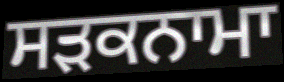
ਸਡ਼ਕਨਾਮਾ